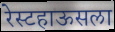
रेस्टहाऊसला